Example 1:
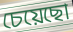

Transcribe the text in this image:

চেয়েছো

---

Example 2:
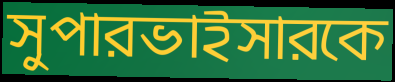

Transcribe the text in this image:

সুপারভাইসারকে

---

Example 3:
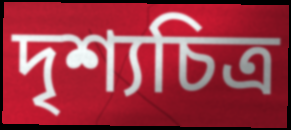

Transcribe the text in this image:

দৃশ্যচিত্র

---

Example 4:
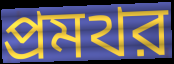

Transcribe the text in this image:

প্রমথর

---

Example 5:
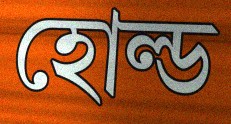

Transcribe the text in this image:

হোল্ড